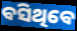
ବସିଥିବେ